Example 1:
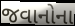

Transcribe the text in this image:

જવાનોના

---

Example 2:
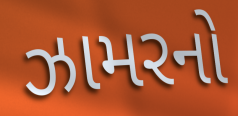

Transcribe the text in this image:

ઝામરનો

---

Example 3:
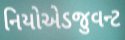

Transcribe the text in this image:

નિયોએડજુવન્ટ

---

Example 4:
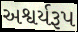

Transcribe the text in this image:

અશ્વર્યરૂપ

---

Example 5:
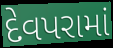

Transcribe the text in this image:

દેવપરામાં